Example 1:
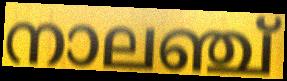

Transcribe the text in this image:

നാലഞ്ച്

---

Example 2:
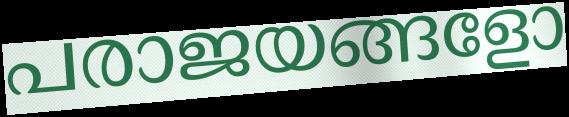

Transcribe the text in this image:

പരാജയങ്ങളോ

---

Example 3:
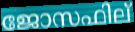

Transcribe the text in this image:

ജോസഫില്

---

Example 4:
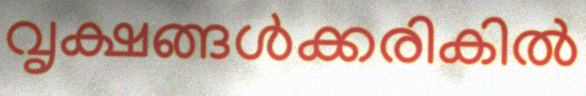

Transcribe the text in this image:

വൃക്ഷങ്ങൾക്കരികിൽ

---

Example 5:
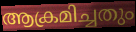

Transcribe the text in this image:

ആക്രമിച്ചതും